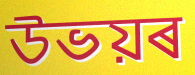
উভয়ৰ